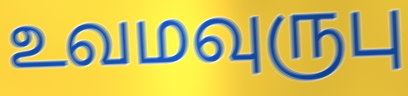
உவமவுருபு